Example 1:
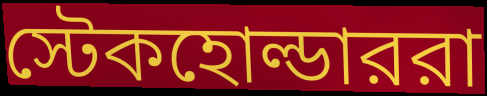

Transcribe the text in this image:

স্টেকহোল্ডাররা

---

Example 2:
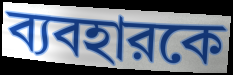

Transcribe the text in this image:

ব্যবহারকে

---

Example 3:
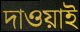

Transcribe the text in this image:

দাওয়াই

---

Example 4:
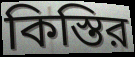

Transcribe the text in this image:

কিস্তির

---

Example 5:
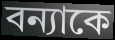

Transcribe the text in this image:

বন্যাকে